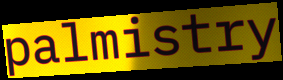
palmistry